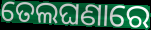
ତେଲଘଣାରେ